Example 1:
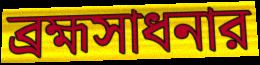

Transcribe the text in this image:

ব্রহ্মসাধনার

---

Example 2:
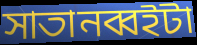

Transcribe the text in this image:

সাতানব্বইটা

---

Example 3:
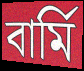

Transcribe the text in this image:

বার্মি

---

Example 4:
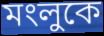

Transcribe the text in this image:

মংলুকে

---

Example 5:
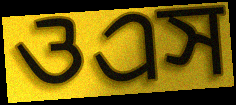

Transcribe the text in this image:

ওএস